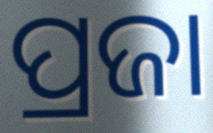
ପ୍ରଜା